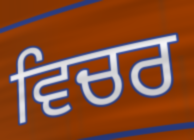
ਵਿਚਰ